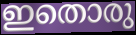
ഇതൊരു